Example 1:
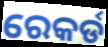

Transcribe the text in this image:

ରେକର୍ଡ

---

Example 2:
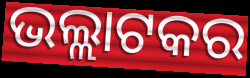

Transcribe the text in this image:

ଭଲ୍ଲାଟକର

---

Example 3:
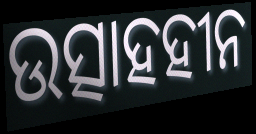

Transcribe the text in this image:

ଉତ୍ସାହହୀନ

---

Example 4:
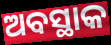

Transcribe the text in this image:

ଅବସ୍ଥାକ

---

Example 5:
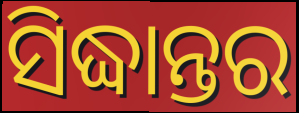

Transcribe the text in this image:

ସିଦ୍ଧାନ୍ତର